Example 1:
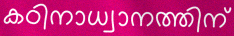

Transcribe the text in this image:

കഠിനാധ്വാനത്തിന്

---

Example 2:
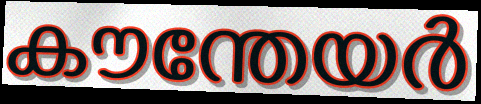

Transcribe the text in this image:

കൗന്തേയർ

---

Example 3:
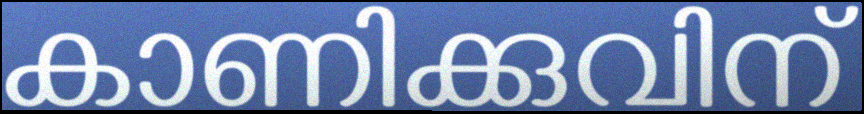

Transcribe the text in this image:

കാണിക്കുവിന്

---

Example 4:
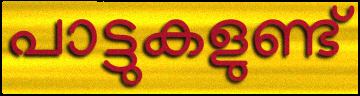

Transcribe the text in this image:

പാട്ടുകളുണ്ട്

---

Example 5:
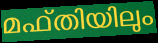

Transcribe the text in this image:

മഫ്തിയിലും